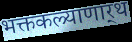
भक्तकल्याणार्थ